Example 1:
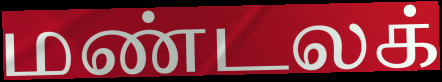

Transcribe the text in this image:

மண்டலக்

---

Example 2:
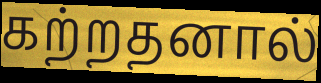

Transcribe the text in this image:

கற்றதனால்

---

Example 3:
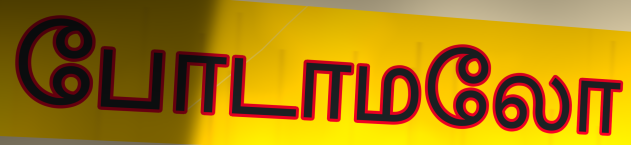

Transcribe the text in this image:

போடாமலோ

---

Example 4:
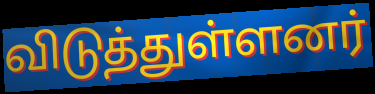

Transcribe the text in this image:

விடுத்துள்ளனர்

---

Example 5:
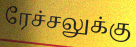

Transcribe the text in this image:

ரேச்சலுக்கு